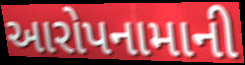
આરોપનામાની